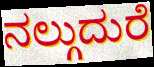
ನಲ್ಗುದುರೆ